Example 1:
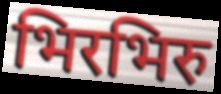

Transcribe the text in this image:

भिरभिरु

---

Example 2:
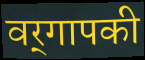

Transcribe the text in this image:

वर्गापकी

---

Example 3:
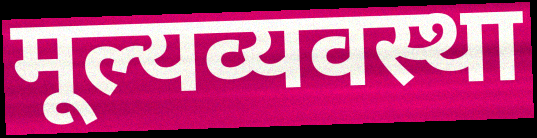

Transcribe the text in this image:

मूल्यव्यवस्था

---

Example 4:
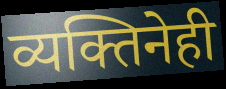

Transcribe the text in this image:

व्यक्तिनेही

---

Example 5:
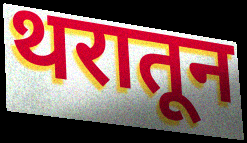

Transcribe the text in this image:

थरातून